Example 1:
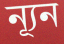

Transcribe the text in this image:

ন্যূন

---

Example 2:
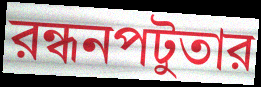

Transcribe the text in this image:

রন্ধনপটুতার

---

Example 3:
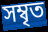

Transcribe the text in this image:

সম্বৃত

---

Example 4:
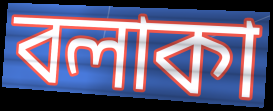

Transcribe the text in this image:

বলাকা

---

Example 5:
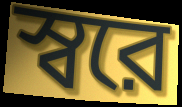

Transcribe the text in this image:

স্বরে